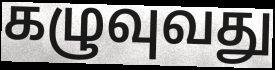
கழுவுவது